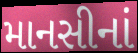
માનસીનાં